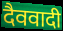
दैववादी